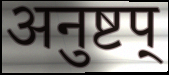
अनुष्टप्